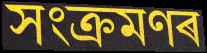
সংক্ৰমণৰ